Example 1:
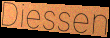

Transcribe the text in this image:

Diessen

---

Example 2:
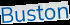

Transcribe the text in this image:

Buston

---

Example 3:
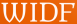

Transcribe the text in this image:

WIDF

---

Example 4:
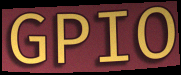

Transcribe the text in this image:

GPIO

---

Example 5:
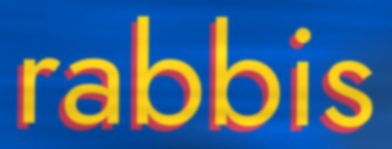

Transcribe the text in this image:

rabbis